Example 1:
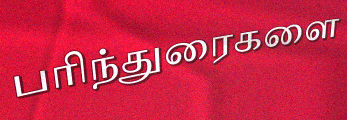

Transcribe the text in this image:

பரிந்துரைகளை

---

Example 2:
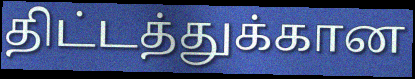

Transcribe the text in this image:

திட்டத்துக்கான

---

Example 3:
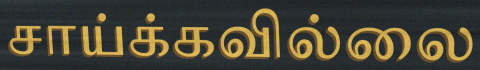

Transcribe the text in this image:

சாய்க்கவில்லை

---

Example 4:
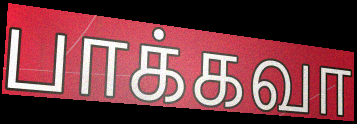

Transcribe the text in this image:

பாக்கவா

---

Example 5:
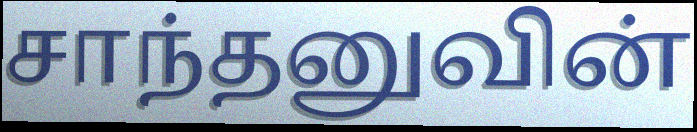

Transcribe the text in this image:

சாந்தனுவின்